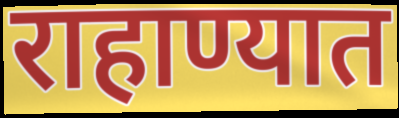
राहाण्यात